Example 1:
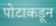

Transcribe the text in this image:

पोटाकडून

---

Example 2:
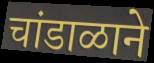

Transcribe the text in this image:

चांडाळाने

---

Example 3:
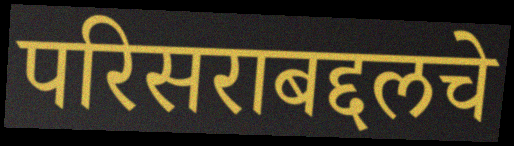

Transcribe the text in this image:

परिसराबद्दलचे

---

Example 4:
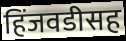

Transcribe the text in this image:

हिंजवडीसह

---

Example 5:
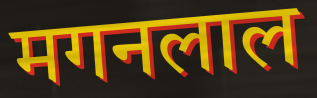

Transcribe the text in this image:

मगनलाल